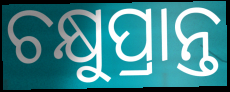
ଚକ୍ଷୁପ୍ରାନ୍ତ